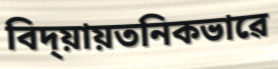
বিদ্য়ায়তনিকভাৱে